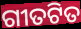
ଗୀତଟିତ